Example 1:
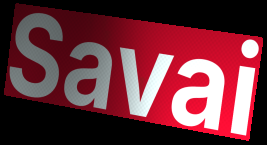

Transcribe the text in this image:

Savai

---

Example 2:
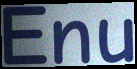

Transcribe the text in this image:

Enu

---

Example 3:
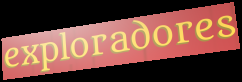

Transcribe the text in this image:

exploradores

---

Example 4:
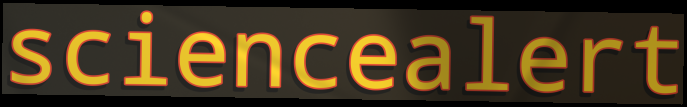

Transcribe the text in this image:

sciencealert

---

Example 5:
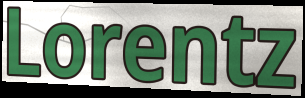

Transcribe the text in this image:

Lorentz